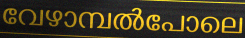
വേഴാമ്പൽപോലെ